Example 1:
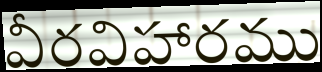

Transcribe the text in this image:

వీరవిహారము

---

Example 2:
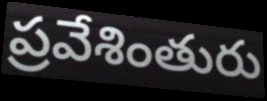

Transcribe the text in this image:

ప్రవేశింతురు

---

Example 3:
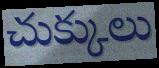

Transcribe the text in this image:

చుక్కులు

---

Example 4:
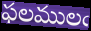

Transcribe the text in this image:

ఫలములఁ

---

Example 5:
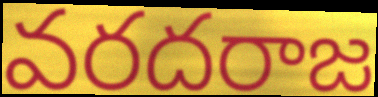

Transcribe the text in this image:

వరదరాజ